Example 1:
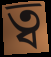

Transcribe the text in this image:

ত্ব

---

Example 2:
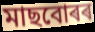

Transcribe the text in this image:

মাছবোৰৰ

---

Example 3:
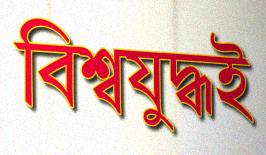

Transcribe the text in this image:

বিশ্বযুদ্ধই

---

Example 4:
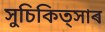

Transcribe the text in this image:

সুচিকিত্সাৰ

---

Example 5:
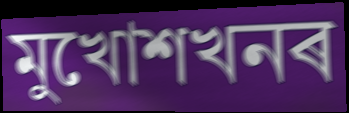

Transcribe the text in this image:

মুখোশখনৰ